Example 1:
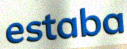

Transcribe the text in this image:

estaba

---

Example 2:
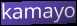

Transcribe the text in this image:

kamayo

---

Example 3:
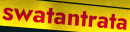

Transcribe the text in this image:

swatantrata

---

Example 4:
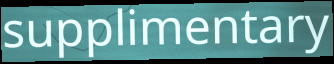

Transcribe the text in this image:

supplimentary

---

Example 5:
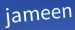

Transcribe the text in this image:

jameen